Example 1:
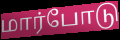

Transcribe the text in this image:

மார்போடு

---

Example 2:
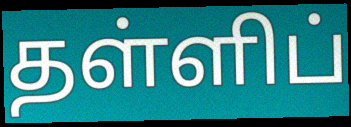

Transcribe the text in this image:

தள்ளிப்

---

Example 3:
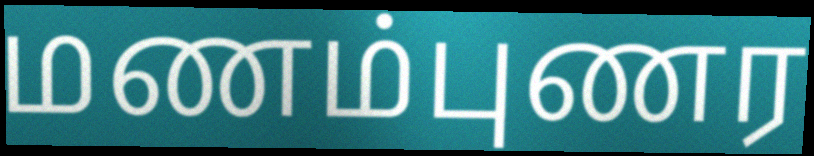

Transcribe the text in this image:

மணம்புணர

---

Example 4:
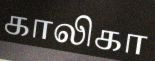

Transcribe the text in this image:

காலிகா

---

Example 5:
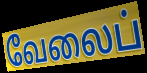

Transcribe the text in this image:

வேலைப்